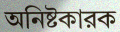
অনিষ্টকারক